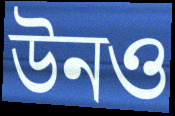
উনও